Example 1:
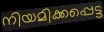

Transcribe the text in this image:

നിയമിക്കപ്പെട്ട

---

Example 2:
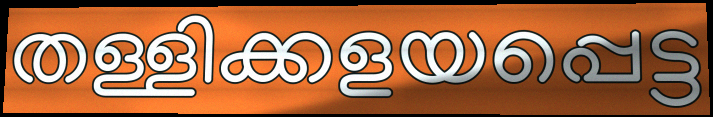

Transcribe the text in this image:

തള്ളിക്കളയപ്പെട്ട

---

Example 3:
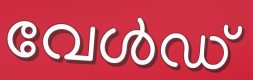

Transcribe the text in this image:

വേൾഡ്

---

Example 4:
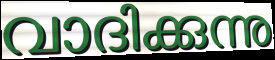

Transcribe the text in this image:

വാദിക്കുന്നു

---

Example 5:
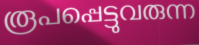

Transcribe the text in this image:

രൂപപ്പെട്ടുവരുന്ന